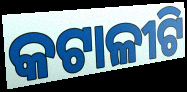
କଟାଳୀଟି